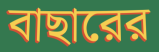
বাছারের